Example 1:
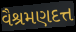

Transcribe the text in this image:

વૈશ્રમણદત્ત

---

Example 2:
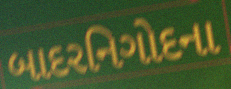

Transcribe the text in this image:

બાદરનિગોદના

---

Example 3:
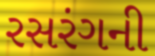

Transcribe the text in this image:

રસરંગની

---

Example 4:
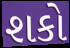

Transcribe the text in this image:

શકો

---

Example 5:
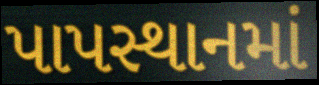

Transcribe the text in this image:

પાપસ્થાનમાં